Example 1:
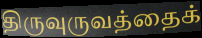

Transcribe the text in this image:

திருவுருவத்தைக்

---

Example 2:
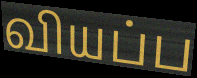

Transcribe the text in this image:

வியப்ப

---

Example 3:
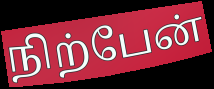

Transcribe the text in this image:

நிற்பேன்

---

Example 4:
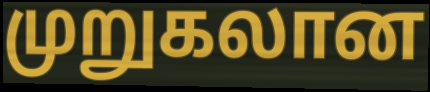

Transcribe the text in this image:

முறுகலான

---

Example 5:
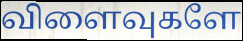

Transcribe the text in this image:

விளைவுகளே